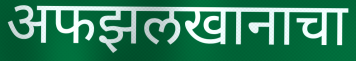
अफझलखानाचा